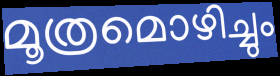
മൂത്രമൊഴിച്ചും